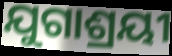
ଯୁଗାଶ୍ରୟୀ